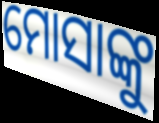
ମୋସାଙ୍କୁ